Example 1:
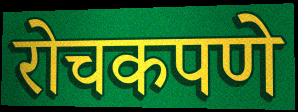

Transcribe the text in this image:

रोचकपणे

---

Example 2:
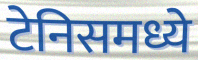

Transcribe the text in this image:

टेनिसमध्ये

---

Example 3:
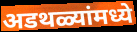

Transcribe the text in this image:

अडथळ्यांमध्ये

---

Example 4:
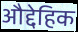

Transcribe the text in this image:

औद्देहिक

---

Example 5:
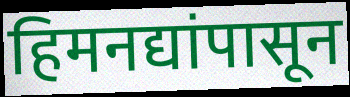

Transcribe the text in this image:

हिमनद्यांपासून